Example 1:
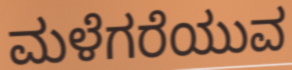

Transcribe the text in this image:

ಮಳೆಗರೆಯುವ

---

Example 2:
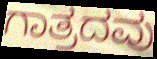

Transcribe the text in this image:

ಗಾತ್ರದವು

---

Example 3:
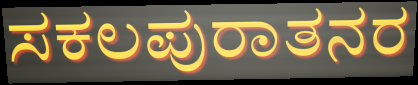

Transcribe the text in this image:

ಸಕಲಪುರಾತನರ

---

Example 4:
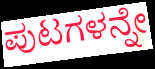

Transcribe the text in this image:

ಪುಟಗಳನ್ನೇ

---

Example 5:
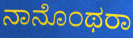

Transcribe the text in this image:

ನಾನೊಂಥರಾ